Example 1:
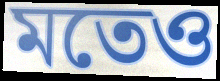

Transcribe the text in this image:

মতেও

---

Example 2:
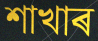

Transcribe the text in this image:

শাখাৰ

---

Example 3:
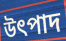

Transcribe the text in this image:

উৎপাদ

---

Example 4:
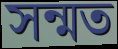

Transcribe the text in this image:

সন্মত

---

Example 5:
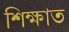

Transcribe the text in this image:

শিক্ষাত